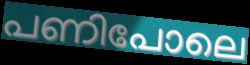
പണിപോലെ